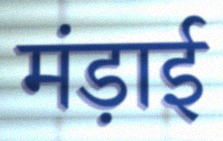
मंड़ाई